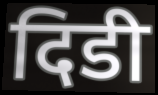
दिडी